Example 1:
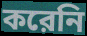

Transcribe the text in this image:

করেনি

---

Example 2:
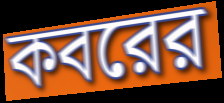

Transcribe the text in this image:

কবরের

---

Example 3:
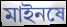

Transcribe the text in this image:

মাইনষে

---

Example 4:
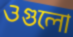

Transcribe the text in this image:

ওগুলো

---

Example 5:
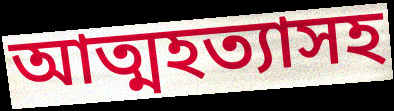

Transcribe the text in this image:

আত্মহত্যাসহ